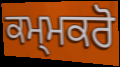
ਕਮ੍ਮਕਰੋ